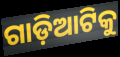
ଗାଡ଼ିଆଟିକୁ